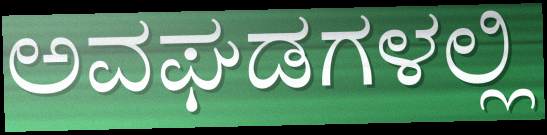
ಅವಘಡಗಳಲ್ಲಿ